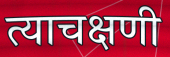
त्याचक्षणी